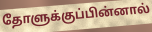
தோளுக்குப்பின்னால்